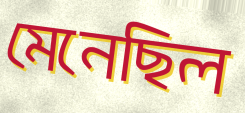
মেনেছিল